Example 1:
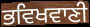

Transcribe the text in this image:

ਭਵਿਖਵਾਣੀ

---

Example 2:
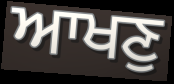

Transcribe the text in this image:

ਆਖਣੁ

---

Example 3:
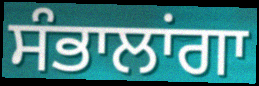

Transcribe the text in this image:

ਸੰਭਾਲਾਂਗਾ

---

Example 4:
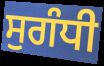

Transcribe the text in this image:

ਸੁਗੰਧੀ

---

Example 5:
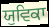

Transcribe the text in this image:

ਯੁਵਿਕਾ